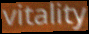
vitality